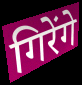
गिरेंगे